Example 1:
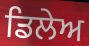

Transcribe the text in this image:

ਡਿਲੇਅ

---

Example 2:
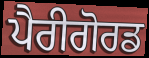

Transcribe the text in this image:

ਪੈਰੀਗੋਰਡ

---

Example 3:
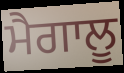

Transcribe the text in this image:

ਮੈਗਾਲੂ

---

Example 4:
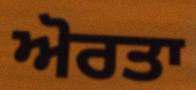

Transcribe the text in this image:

ਅੋਰਤਾ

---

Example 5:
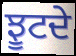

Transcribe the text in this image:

ਝੂਟਦੇ